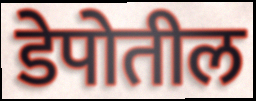
डेपोतील